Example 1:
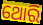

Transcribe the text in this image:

ଥୋରି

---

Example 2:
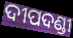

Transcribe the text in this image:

ଦୀପଦଣ୍ଡୀ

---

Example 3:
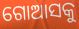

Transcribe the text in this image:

ଗୋଆସକୁ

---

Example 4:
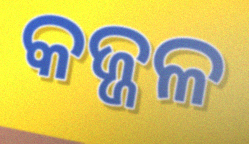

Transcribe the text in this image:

କଜ୍ଜଳ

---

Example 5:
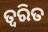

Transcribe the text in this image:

ତ୍ଵରିତ